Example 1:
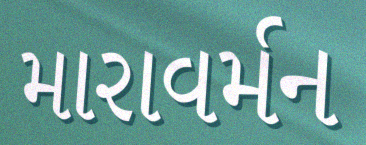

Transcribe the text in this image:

મારાવર્મન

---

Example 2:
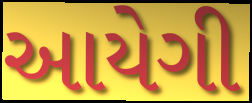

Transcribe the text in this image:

આયેગી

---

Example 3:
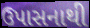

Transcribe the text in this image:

ઉપાસનાથી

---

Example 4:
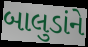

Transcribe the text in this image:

બાલુડાંને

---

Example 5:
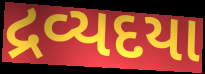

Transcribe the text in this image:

દ્રવ્યદયા